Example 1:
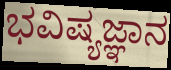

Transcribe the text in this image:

ಭವಿಷ್ಯಜ್ಞಾನ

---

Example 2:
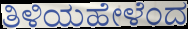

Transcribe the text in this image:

ತಿಳಿಯಹೇಳೆಂದ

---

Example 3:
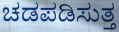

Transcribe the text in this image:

ಚಡಪಡಿಸುತ್ತ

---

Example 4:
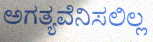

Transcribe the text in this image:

ಅಗತ್ಯವೆನಿಸಲಿಲ್ಲ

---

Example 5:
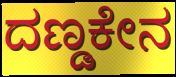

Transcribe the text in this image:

ದಣ್ಡಕೇನ